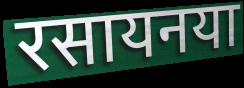
रसायनया